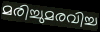
മരിച്ചുമരവിച്ച